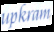
upkram